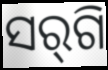
ସର୍‌ଗି